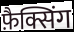
फ़ैक्सिंग